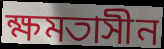
ক্ষমতাসীন